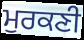
ਮੁਰਕਣੀ